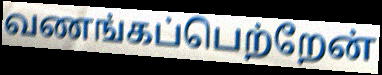
வணங்கப்பெற்றேன்